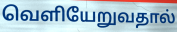
வெளியேறுவதால்